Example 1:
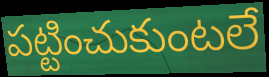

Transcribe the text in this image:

పట్టించుకుంటలే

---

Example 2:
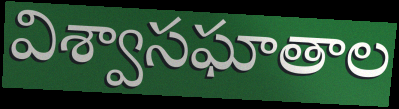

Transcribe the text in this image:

విశ్వాసఘాతాల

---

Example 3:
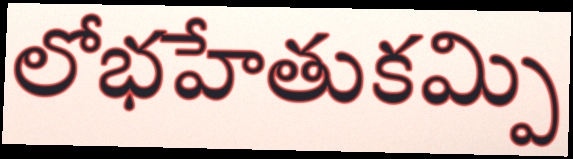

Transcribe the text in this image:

లోభహేతుకమ్పి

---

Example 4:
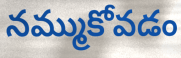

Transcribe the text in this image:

నమ్ముకోవడం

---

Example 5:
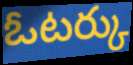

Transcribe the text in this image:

ఓటర్కు